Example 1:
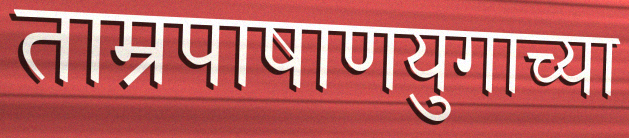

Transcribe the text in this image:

ताम्रपाषाणयुगाच्या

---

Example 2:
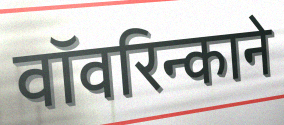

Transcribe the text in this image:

वॉवरिन्काने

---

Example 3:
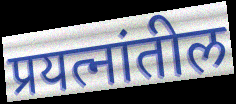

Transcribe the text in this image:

प्रयत्नांतील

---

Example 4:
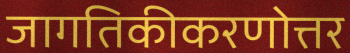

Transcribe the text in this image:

जागतिकीकरणोत्तर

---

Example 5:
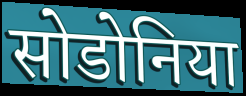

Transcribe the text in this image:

सोडोनिया